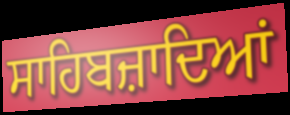
ਸਾਹਿਬਜ਼ਾਦਿਆਂ